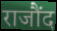
राजौंद